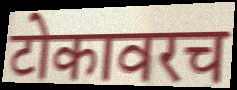
टोकावरच